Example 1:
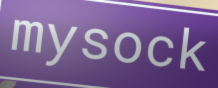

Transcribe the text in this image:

mysock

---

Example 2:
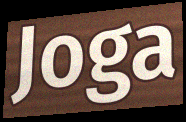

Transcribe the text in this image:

Joga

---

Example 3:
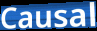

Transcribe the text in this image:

Causal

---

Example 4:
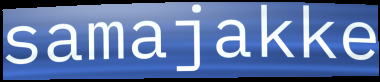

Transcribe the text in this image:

samajakke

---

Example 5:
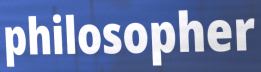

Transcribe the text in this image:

philosopher